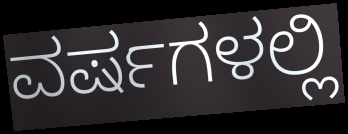
ವರ್ಷಗಳಲ್ಲಿ